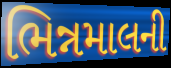
ભિન્નમાલની